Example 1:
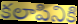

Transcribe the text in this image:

కలాపినికి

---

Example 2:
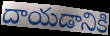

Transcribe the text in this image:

దాయడానికి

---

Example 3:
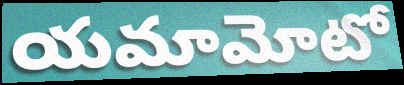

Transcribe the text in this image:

యమామోటో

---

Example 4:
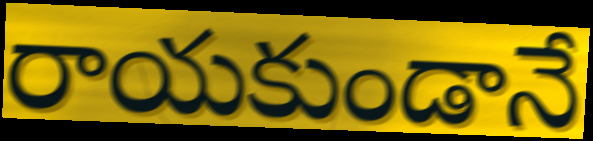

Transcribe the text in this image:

రాయకుండానే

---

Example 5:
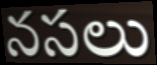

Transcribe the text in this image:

నసలు